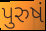
પુરુષં